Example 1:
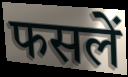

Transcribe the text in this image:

फसलें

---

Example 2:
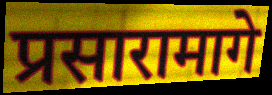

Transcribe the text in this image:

प्रसारामागे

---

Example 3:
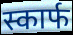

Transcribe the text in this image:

स्कार्फ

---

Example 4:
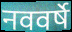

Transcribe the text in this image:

नववर्षे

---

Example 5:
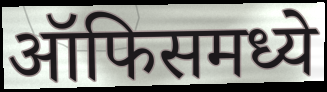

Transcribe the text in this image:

ऑफिसमध्ये